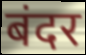
बंदर